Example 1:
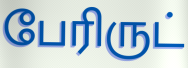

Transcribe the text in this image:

பேரிருட்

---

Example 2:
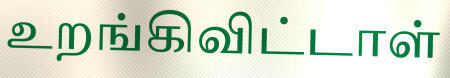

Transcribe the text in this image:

உறங்கிவிட்டாள்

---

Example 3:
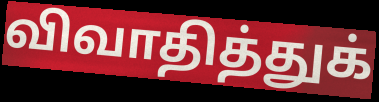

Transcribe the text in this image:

விவாதித்துக்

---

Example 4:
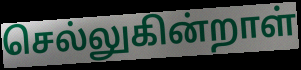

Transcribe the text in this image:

செல்லுகின்றாள்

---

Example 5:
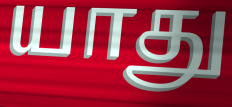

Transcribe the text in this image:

யாது